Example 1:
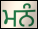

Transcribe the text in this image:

ਮਨੰ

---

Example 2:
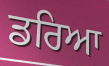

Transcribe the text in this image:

ਡਰਿਆ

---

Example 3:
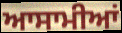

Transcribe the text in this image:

ਆਸਾਮੀਆਂ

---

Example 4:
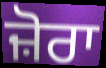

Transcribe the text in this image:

ਜ਼ੋਰਾ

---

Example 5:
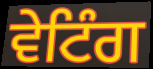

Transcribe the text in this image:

ਵੇਟਿੰਗ